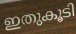
ഇതുകൂടി